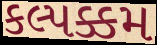
કલ્પક્કમ